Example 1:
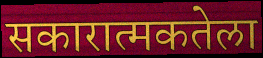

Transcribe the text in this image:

सकारात्मकतेला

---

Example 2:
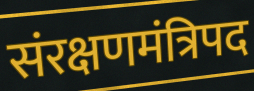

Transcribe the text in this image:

संरक्षणमंत्रिपद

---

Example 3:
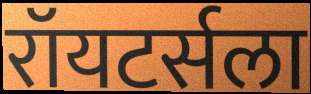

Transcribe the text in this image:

रॉयटर्सला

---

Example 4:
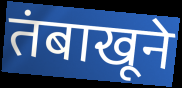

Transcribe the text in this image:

तंबाखूने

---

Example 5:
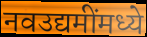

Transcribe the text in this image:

नवउद्यमींमध्ये